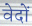
वेदों